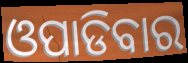
ଓପାଡିବାର